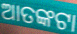
ଆତଙ୍କଟା